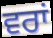
ਵਰਾਂ